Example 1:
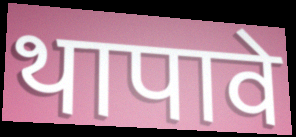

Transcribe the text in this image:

थापावे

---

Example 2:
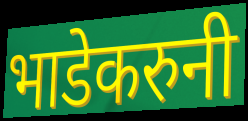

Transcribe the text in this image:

भाडेकरुनी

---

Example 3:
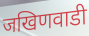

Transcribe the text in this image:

जखिणवाडी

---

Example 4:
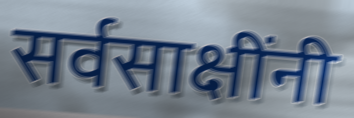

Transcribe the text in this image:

सर्वसाक्षींनी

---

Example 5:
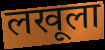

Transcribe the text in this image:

लखूला